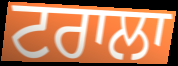
ਟਰਾਲਾ